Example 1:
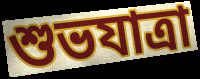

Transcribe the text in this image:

শুভযাত্রা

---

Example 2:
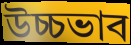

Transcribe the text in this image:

উচ্চভাব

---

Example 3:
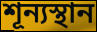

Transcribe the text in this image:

শূন্যস্থান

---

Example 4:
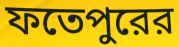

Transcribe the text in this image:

ফতেপুরের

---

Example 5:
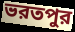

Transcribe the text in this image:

ভরতপুর